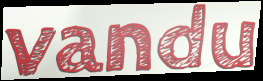
vandu